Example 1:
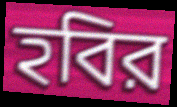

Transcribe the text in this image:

হবির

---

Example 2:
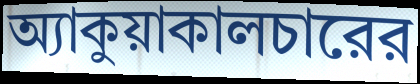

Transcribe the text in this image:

অ্যাকুয়াকালচারের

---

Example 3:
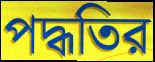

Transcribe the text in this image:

পদ্ধতির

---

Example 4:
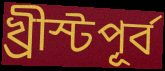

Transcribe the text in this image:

খ্রীস্টপূর্ব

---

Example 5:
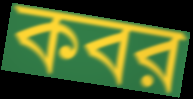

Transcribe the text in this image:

কবর